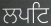
ਲਪਟਿ